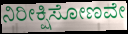
ನಿರೀಕ್ಷಿಸೋಣವೇ